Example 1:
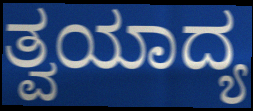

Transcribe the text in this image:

ತ್ವಯಾದ್ಯ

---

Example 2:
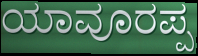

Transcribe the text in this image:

ಯಾವೂರಪ್ಪ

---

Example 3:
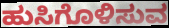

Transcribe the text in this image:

ಹುಸಿಗೊಳಿಸುವ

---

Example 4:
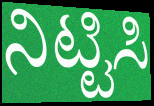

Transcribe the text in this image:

ನಿಟ್ಟಿಸಿ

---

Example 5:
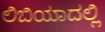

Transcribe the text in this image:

ಲಿಬಿಯಾದಲ್ಲಿ